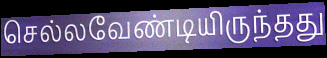
செல்லவேண்டியிருந்தது